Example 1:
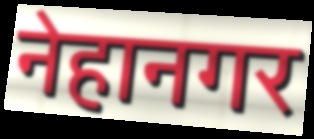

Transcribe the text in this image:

नेहानगर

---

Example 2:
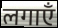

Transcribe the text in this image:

लगाएँ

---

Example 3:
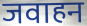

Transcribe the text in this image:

जवाहन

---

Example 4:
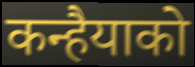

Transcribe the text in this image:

कन्हैयाको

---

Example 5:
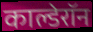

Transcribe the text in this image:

काल्डेरॉन